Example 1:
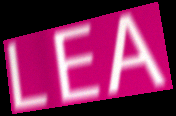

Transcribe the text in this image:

LEA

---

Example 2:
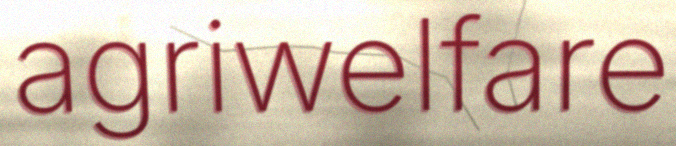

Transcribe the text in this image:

agriwelfare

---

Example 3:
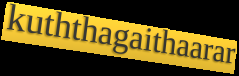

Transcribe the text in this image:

kuththagaithaarar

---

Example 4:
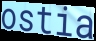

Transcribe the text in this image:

ostia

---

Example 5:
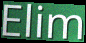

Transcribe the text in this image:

Elim